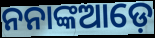
ନନାଙ୍କଆଡ଼େ